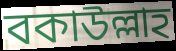
বকাউল্লাহ